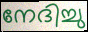
നേദിച്ചു